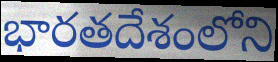
భారతదేశంలోని